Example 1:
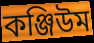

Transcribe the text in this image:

কঞ্জিউম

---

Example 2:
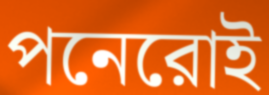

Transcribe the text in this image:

পনেরোই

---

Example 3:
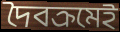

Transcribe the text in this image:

দৈবক্রমেই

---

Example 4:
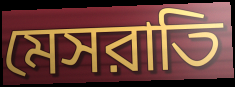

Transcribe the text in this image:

মেসরাতি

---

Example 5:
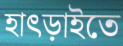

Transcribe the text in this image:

হাৎড়াইতে